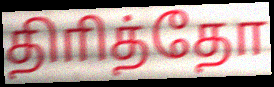
திரித்தோ